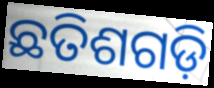
ଛତିଶଗଡ଼ି